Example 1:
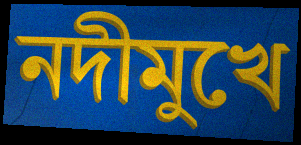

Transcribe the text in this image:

নদীমুখে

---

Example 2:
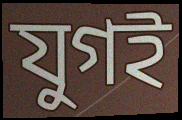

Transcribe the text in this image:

যুগই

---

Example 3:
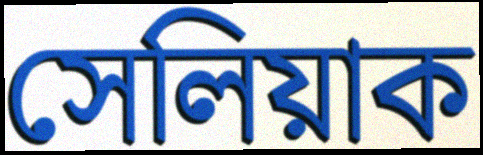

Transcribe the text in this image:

সেলিয়াক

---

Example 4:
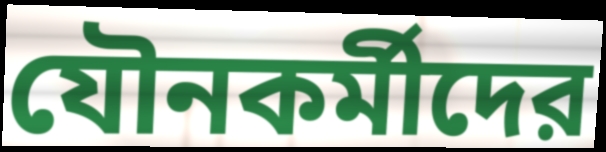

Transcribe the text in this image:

যৌনকর্মীদের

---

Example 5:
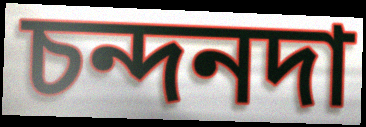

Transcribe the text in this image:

চন্দনদা